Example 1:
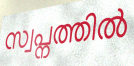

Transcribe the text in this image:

സ്വപ്നത്തിൽ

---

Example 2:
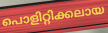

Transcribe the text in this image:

പൊളിറ്റിക്കലായ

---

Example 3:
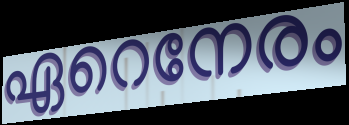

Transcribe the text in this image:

ഏറെനേരം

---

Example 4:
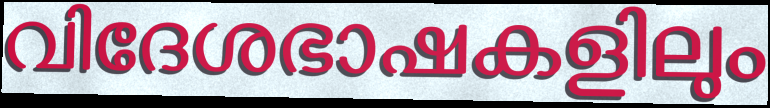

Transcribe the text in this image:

വിദേശഭാഷകളിലും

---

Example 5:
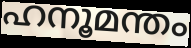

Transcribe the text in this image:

ഹനൂമന്തം